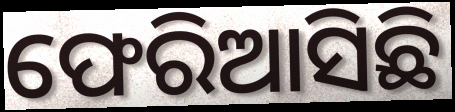
ଫେରିଆସିଛି